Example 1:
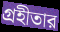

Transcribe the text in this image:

গ্রহীতার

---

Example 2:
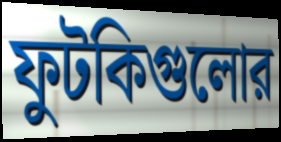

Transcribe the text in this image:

ফুটকিগুলোর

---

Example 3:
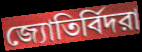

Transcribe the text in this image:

জ্যোতির্বিদরা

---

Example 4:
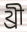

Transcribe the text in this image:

থ্রী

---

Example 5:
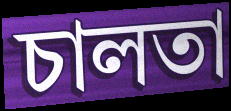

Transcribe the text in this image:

চালতা